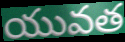
యువత